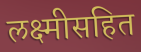
लक्ष्मीसहित